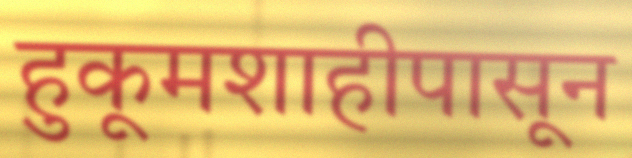
हुकूमशाहीपासून